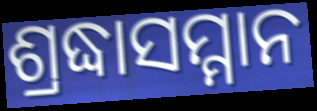
ଶ୍ରଦ୍ଧାସମ୍ମାନ